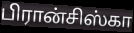
பிரான்சிஸ்கா